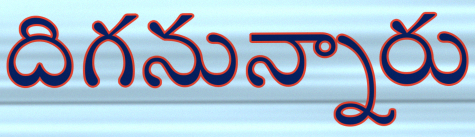
దిగనున్నారు